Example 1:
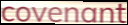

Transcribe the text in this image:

covenant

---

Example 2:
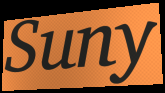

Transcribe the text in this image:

Suny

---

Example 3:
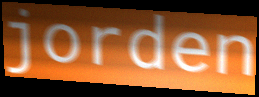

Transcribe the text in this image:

jorden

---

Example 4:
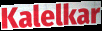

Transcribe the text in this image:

Kalelkar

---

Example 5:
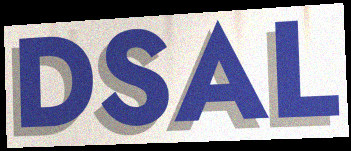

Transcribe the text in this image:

DSAL